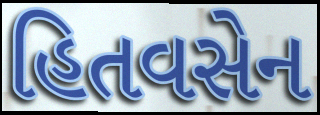
હિતવસેન